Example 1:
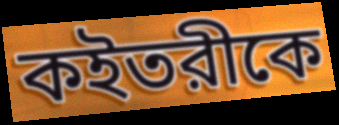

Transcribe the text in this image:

কইতরীকে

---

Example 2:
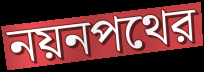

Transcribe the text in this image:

নয়নপথের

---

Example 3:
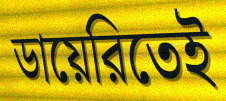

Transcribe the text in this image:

ডায়েরিতেই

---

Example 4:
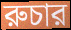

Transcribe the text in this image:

রুচার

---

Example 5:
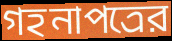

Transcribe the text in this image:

গহনাপত্রের